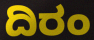
ದಿರಂ